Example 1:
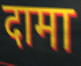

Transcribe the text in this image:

दामा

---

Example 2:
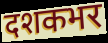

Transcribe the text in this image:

दशकभर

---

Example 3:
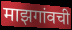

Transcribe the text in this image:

माझगांवची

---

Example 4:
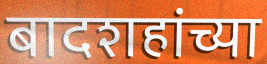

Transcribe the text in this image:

बादशहांच्या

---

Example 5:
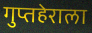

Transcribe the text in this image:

गुप्तहेराला